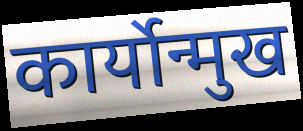
कार्योन्मुख